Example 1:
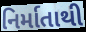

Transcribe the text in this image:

નિર્માતાથી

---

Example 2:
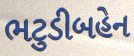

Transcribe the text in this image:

ભટુડીબહેન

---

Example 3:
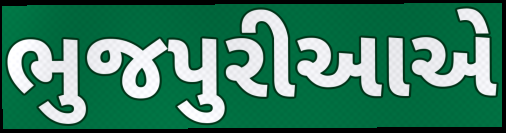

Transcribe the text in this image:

ભુજપુરીઆએ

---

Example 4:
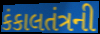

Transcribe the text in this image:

કંકાલતંત્રની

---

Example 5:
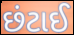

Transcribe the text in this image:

છંટાઈ